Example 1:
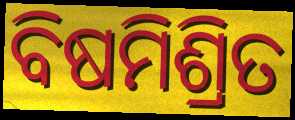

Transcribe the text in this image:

ବିଷମିଶ୍ରିତ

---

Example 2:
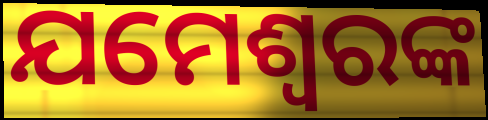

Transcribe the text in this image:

ଯମେଶ୍ୱରଙ୍କ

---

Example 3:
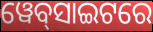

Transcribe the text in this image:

ୱେବ୍‍ସାଇଟରେ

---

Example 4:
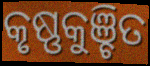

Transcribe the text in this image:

କୃଷ୍ଣକୁଞ୍ଚିତ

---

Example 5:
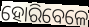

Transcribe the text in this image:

ହୋରିବେଳେ